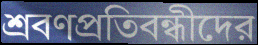
শ্রবণপ্রতিবন্ধীদের